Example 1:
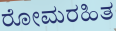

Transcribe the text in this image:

ರೋಮರಹಿತ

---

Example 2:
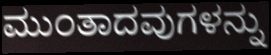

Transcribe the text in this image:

ಮುಂತಾದವುಗಳನ್ನು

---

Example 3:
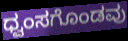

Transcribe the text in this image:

ಧ್ವಂಸಗೊಂಡವು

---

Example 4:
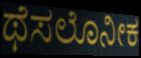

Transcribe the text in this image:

ಥೆಸಲೊನೀಕ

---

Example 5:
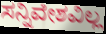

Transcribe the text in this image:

ಸನ್ನಿವೇಶವಿಲ್ಲ